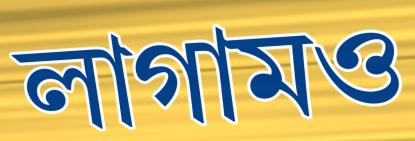
লাগামও